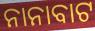
ନାନାବାଟ